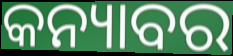
କନ୍ୟାବର